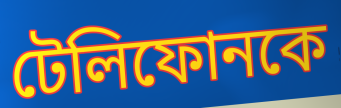
টেলিফোনকে